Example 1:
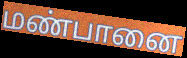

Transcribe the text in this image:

மண்பானை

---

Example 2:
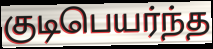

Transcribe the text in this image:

குடிபெயர்ந்த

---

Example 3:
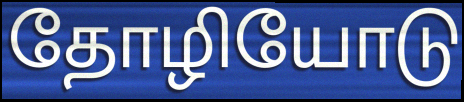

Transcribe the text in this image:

தோழியோடு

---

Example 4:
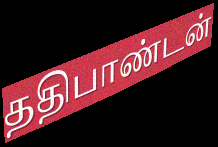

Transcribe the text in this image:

ததிபாண்டன்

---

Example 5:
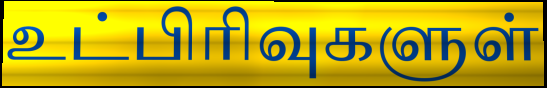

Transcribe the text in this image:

உட்பிரிவுகளுள்